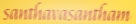
santhavasantham